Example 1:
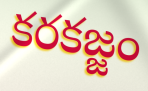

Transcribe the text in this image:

కరకజ్జం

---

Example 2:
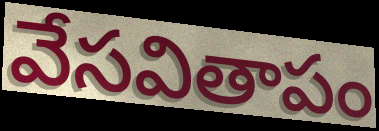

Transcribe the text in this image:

వేసవితాపం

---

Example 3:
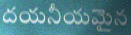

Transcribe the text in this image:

దయనీయమైన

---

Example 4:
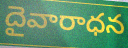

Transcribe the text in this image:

దైవారాధన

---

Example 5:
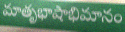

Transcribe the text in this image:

మాతృభాషాభిమానం